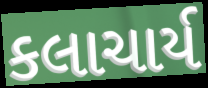
કલાચાર્ય